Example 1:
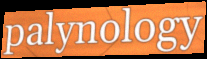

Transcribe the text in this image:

palynology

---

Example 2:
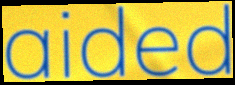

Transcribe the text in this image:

aided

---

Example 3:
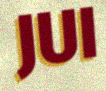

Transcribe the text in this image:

JUI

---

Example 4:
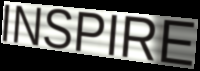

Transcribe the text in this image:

INSPIRE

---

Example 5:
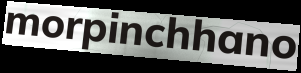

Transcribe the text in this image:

morpinchhano